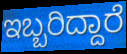
ಇಬ್ಬರಿದ್ದಾರೆ